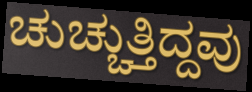
ಚುಚ್ಚುತ್ತಿದ್ದವು